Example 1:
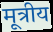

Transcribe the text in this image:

मूत्रीय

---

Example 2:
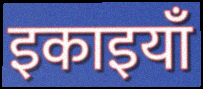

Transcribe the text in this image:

इकाइयाँ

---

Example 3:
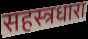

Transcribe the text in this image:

सहस्त्रधारा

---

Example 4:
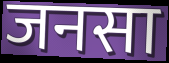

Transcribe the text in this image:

जनसा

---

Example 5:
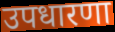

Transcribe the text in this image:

उपधारणा